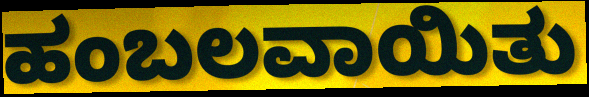
ಹಂಬಲವಾಯಿತು